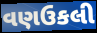
વણઉકલી